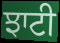
ਝਾਟੀ